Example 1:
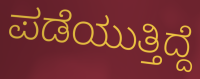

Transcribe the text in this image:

ಪಡೆಯುತ್ತಿದ್ದೆ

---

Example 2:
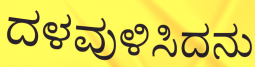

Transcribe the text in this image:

ದಳವುಳಿಸಿದನು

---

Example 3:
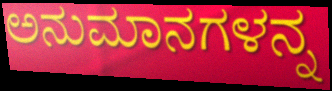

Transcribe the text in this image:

ಅನುಮಾನಗಳನ್ನ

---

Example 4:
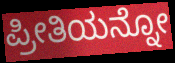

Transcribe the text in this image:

ಪ್ರೀತಿಯನ್ನೋ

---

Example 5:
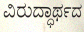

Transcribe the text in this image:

ವಿರುದ್ಧಾರ್ಥದ